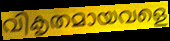
വികൃതമായവളെ